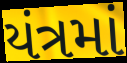
યંત્રમાં